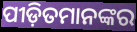
ପୀଡ଼ିତମାନଙ୍କର